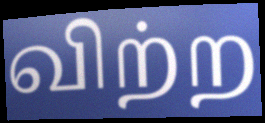
விற்ற